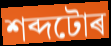
শব্দটোৰ